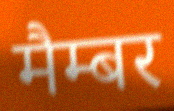
मैम्बर